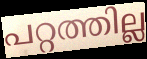
പറ്റത്തില്ല